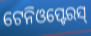
ଟେନିଓପ୍ଟେରସ୍